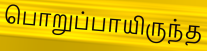
பொறுப்பாயிருந்த